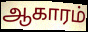
ஆகாரம்